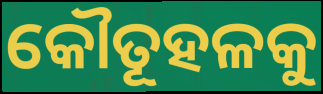
କୌତୂହଳକୁ